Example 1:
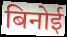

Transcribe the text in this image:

बिनोई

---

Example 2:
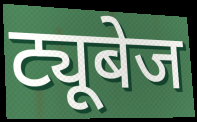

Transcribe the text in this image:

ट्यूबेज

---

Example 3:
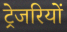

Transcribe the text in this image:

ट्रेजरियों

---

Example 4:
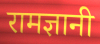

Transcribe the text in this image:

रामज्ञानी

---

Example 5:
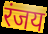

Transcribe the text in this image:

रंजय